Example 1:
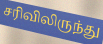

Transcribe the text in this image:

சரிவிலிருந்து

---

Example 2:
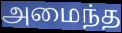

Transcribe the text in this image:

அமைந்த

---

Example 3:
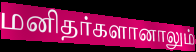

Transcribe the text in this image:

மனிதர்களானாலும்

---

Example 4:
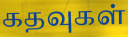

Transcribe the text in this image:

கதவுகள்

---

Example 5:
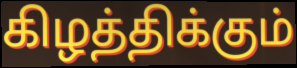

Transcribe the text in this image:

கிழத்திக்கும்